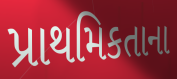
પ્રાથમિકતાના